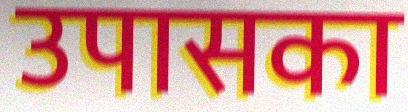
उपासका